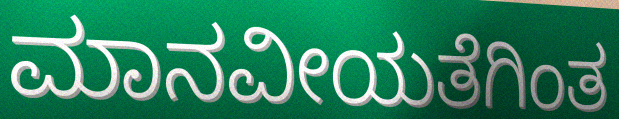
ಮಾನವೀಯತೆಗಿಂತ